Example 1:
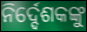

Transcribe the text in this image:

ନିର୍ଦ୍ଦେଶକଙ୍କୁ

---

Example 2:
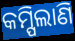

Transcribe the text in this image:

କମ୍ପିଲାଣି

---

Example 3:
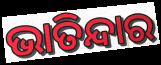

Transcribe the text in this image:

ଭାତିନ୍ଦାର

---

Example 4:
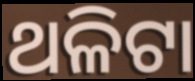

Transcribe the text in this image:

ଥଳିଟା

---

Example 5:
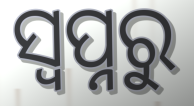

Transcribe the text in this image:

ସ୍ବପ୍ନରୁ